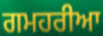
ਗਮਹਰੀਆ